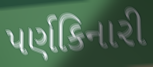
પર્ણકિનારી